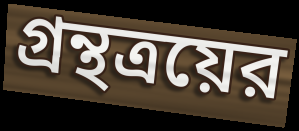
গ্রন্থত্রয়ের